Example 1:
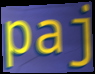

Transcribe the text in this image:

paj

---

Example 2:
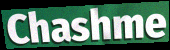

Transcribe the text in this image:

Chashme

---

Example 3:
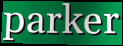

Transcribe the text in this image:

parker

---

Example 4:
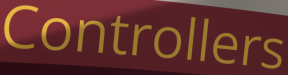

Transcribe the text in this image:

Controllers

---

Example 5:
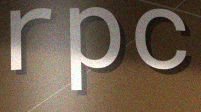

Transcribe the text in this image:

rpc